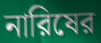
নারিষের